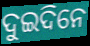
ଦୁଇଦିନେ